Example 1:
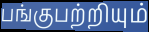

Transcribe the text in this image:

பங்குபற்றியும்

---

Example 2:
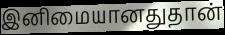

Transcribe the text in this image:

இனிமையானதுதான்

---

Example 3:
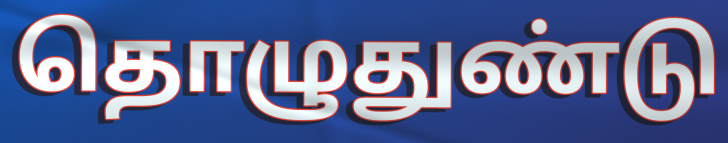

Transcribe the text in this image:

தொழுதுண்டு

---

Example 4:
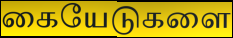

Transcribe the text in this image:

கையேடுகளை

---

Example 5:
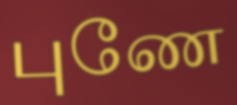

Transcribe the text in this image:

புணே